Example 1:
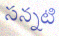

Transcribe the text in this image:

సన్నటి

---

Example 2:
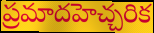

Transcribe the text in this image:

ప్రమాదహెచ్చరిక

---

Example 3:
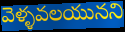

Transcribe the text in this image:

వెళ్ళవలయునని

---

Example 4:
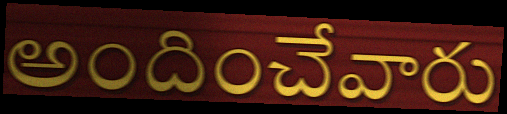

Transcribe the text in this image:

అందించేవారు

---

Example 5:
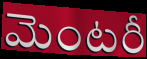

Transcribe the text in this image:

మెంటరీ